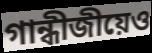
গান্ধীজীয়েও